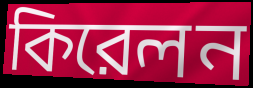
কিরেলন